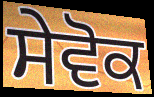
ਸੇਵੋਕ